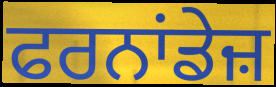
ਫਰਨਾਂਡੇਜ਼